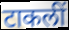
टाकलीं